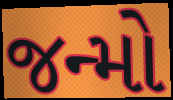
જન્મો